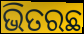
ଭିତରଛ